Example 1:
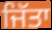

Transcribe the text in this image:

ਜਿੱਤਾ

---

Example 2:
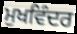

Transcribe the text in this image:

ਮੁਖਵਿੰਦਰ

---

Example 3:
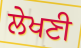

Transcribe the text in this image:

ਲੇਖਣੀ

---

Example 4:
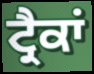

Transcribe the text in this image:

ਟ੍ਰੈਕਾਂ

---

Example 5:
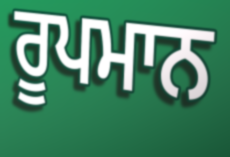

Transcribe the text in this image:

ਰੂਪਮਾਨ